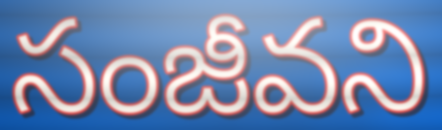
సంజీవని